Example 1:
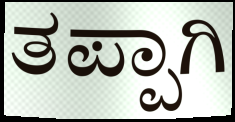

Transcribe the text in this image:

ತಪ್ಪಾಗಿ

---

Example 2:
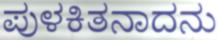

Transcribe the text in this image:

ಪುಳಕಿತನಾದನು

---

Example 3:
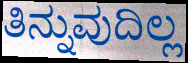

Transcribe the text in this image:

ತಿನ್ನುವುದಿಲ್ಲ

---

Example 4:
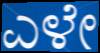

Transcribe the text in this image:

ಎಳೇ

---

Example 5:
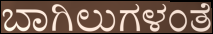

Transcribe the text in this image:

ಬಾಗಿಲುಗಳಂತೆ